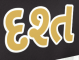
દશ્ત